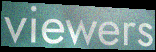
viewers